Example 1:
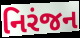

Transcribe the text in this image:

નિરંજન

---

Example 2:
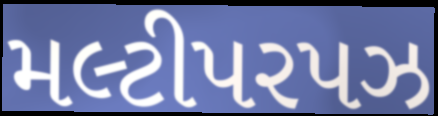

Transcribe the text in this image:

મલ્ટીપરપઝ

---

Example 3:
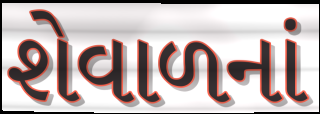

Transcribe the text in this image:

શેવાળનાં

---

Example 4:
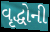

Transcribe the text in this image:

વૃદ્ધોની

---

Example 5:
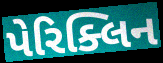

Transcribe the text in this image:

પેરિક્લિન